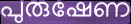
പുരുഷേണ